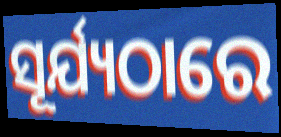
ସୂର୍ଯ୍ୟଠାରେ